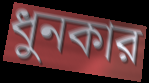
ধুনকার